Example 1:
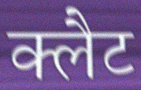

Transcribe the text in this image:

क्लैट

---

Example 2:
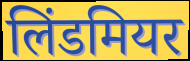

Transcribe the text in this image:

लिंडमियर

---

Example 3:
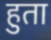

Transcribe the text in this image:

हुता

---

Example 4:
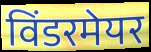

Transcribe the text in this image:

विंडरमेयर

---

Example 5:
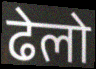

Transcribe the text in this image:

ढेलो